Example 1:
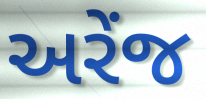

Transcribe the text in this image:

અરેંજ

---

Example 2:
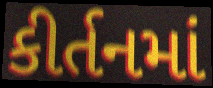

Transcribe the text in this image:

કીર્તનમાં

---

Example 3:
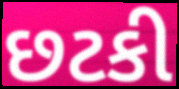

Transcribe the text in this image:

છટકી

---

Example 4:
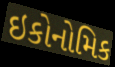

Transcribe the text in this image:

ઇકોનોમિક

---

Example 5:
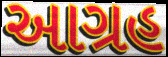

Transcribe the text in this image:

આગ્રહ